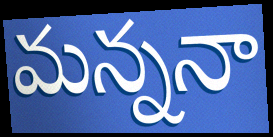
మన్ననా